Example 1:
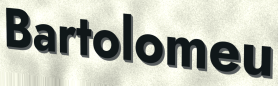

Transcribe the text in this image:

Bartolomeu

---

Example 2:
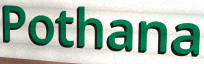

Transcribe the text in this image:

Pothana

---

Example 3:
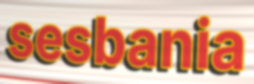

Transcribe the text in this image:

sesbania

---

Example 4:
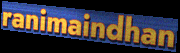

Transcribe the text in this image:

ranimaindhan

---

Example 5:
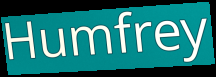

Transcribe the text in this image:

Humfrey